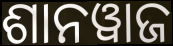
ଶାନୱାଜ